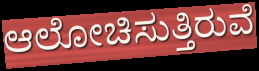
ಆಲೋಚಿಸುತ್ತಿರುವೆ